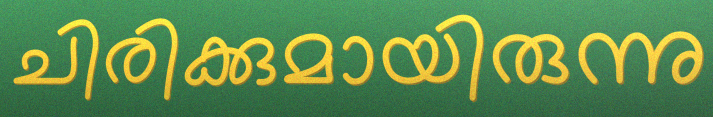
ചിരിക്കുമായിരുന്നു